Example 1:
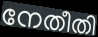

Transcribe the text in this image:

നേതീതി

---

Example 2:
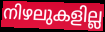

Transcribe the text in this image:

നിഴലുകളില്ല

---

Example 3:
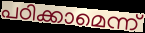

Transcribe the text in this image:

പഠിക്കാമെന്ന്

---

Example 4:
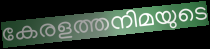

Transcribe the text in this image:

കേരളത്തനിമയുടെ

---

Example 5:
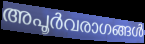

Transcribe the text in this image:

അപൂർവരാഗങ്ങൾ